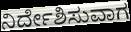
ನಿರ್ದೇಶಿಸುವಾಗ